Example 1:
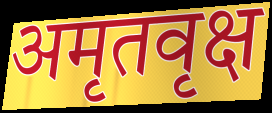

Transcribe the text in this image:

अमृतवृक्ष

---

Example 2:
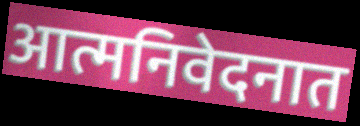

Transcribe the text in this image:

आत्मनिवेदनात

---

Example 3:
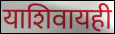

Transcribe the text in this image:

याशिवायही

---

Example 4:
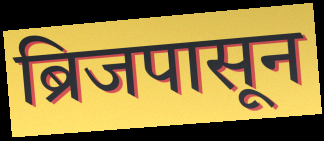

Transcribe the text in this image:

ब्रिजपासून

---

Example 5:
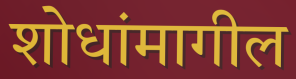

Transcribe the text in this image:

शोधांमागील